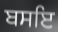
ਬਸਇ